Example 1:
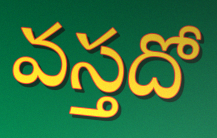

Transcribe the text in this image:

వస్తదో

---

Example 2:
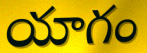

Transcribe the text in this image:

యాగం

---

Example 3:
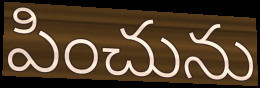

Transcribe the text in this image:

పించును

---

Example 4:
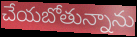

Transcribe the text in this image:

చేయబోతున్నాను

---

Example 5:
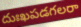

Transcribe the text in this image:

దుఃఖపడగలరా